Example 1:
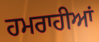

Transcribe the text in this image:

ਹਮਰਾਹੀਆਂ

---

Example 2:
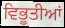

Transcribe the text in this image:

ਵਿਭੂਤੀਆਂ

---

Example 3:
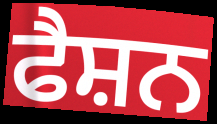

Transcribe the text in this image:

ਫੈਸ਼ਨ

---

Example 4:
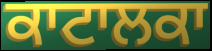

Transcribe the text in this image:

ਕਾਟਾਲਕਾ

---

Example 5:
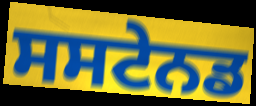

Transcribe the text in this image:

ਸਸਟੇਨਡ